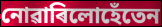
নোৱাৰিলোহেঁতেন